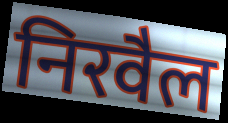
निरवैल